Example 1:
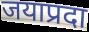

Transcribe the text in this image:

जयाप्रदा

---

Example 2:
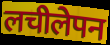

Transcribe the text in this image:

लचीलेपन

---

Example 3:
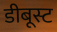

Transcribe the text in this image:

डीबूस्ट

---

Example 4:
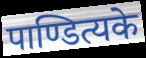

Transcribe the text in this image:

पाण्डित्यके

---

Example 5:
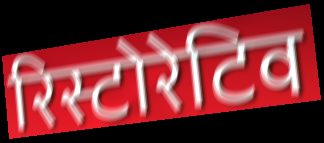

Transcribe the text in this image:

रिस्टोरेटिव